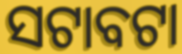
ସଟାବଟା